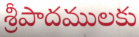
శ్రీపాదములకు